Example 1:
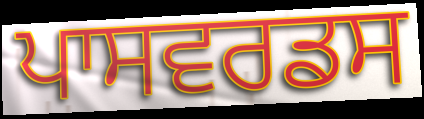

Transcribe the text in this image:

ਪਾਸਵਰਡਸ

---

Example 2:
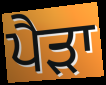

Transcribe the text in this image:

ਪੈੜਾ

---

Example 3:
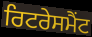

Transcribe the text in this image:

ਰਿਟਰੇਸਮੈਂਟ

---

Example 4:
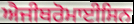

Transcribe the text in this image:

ਐਜੀਥਰੋਮਾਈਸਿਨ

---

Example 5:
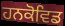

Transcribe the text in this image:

ਹਨਕੋਵਿਡ